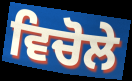
ਵਿਚੋਲੇ